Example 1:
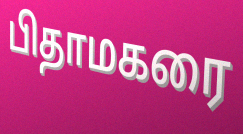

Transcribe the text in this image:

பிதாமகரை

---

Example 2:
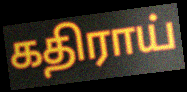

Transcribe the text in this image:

கதிராய்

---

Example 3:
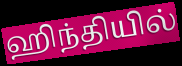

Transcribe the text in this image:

ஹிந்தியில்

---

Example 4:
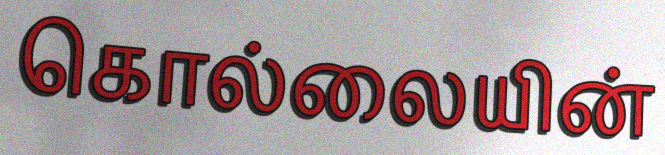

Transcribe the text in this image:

கொல்லையின்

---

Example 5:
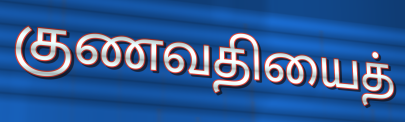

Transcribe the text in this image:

குணவதியைத்